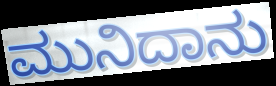
ಮುನಿದಾನು